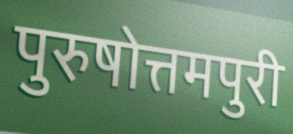
पुरुषोत्तमपुरी